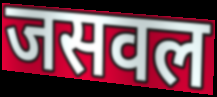
जसवल